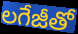
లగేజీతో